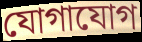
যোগাযোগ